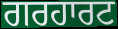
ਗਰਹਾਰਟ